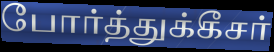
போர்த்துக்கீசர்